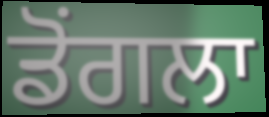
ਡੋਂਗਲਾ